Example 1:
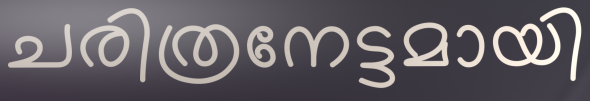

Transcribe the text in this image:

ചരിത്രനേട്ടമായി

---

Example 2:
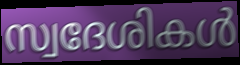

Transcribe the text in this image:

സ്വദേശികൾ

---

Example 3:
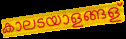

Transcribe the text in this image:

കാലടയാളങ്ങള്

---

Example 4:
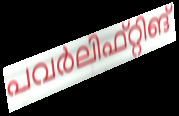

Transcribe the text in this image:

പവർലിഫ്റ്റിങ്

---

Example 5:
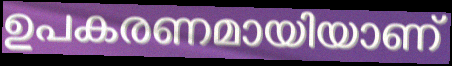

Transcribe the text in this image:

ഉപകരണമായിയാണ്